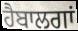
ਹੈਬਾਲਗਾਂ